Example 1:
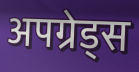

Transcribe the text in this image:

अपग्रेड्स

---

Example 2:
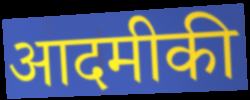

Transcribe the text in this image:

आदमीकी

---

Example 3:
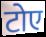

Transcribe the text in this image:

टोए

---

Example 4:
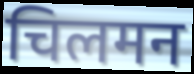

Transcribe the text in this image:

चिलमन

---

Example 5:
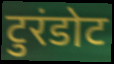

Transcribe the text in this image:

टुरंडोट